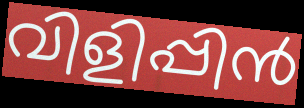
വിളിപ്പിൻ